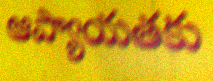
ఆప్యాయతకు